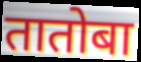
तातोबा